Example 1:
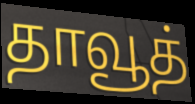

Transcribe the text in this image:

தாவூத்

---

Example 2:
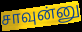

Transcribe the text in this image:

சாவுன்னு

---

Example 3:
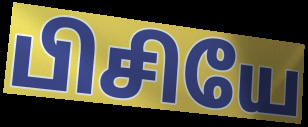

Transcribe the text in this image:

பிசியே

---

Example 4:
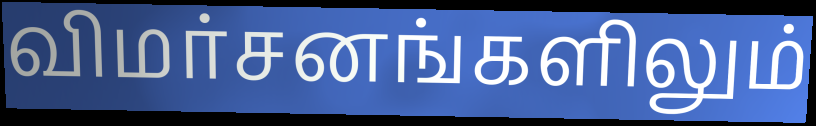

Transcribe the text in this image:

விமர்சனங்களிலும்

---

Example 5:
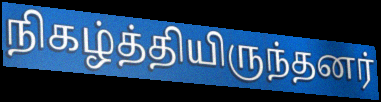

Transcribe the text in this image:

நிகழ்த்தியிருந்தனர்